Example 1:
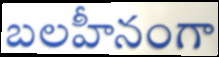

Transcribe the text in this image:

బలహీనంగా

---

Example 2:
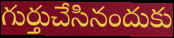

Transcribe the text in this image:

గుర్తుచేసినందుకు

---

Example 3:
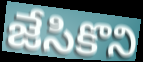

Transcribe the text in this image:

జేసికొని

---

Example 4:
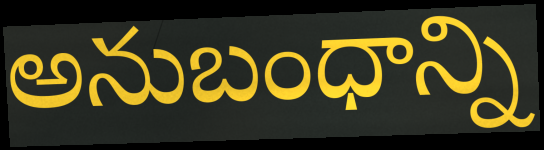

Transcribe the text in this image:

అనుబంధాన్ని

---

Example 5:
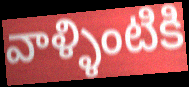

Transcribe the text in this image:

వాళ్ళింటికి